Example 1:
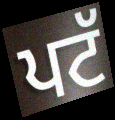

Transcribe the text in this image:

ਪਟੱ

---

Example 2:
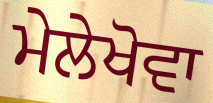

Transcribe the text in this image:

ਮੇਲੇਖੋਵਾ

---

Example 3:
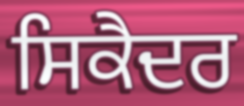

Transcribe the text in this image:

ਸਿਕੈਦਰ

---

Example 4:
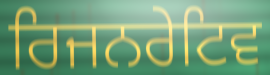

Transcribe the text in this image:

ਰਿਜਨਰੇਟਿਵ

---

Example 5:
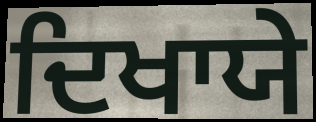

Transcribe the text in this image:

ਦਿਖਾਯੇ